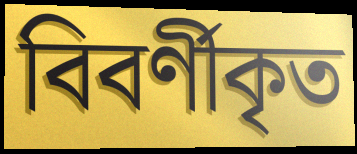
বিবর্ণীকৃত